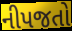
નીપજતો